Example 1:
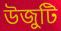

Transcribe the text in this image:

উজুটি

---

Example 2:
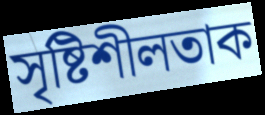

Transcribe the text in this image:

সৃষ্টিশীলতাক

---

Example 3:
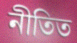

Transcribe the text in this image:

নীতিত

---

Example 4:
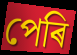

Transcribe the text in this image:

পেৰি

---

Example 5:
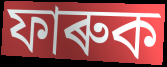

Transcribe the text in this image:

ফাৰুক